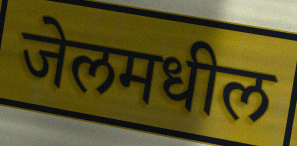
जेलमधील